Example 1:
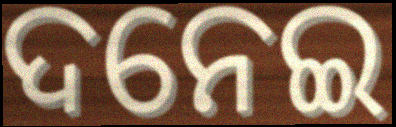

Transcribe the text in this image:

ଦନେଇ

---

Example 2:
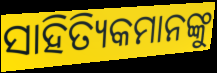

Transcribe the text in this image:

ସାହିତ୍ୟିକମାନଙ୍କୁ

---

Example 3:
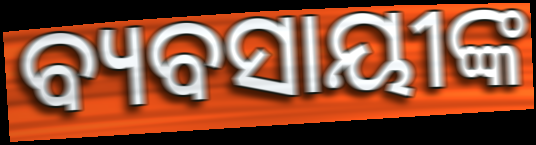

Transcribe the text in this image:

ବ୍ୟବସାୟୀଙ୍କ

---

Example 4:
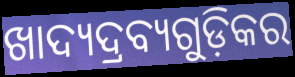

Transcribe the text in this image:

ଖାଦ୍ୟଦ୍ରବ୍ୟଗୁଡ଼ିକର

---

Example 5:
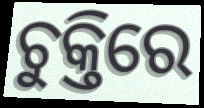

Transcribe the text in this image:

ଚୁକ୍ତିରେ